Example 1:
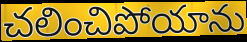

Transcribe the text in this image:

చలించిపోయాను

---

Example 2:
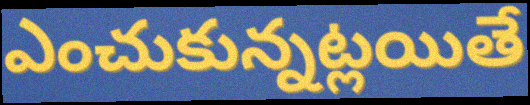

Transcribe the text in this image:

ఎంచుకున్నట్లయితే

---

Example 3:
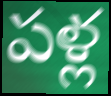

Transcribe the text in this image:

పళ్ల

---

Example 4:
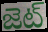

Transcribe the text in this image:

జెట్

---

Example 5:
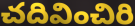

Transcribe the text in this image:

చదివించిరి